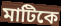
মাটিকে